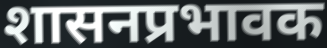
शासनप्रभावक